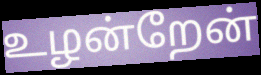
உழன்றேன்